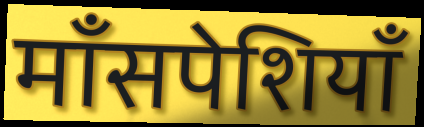
माँसपेशियाँ